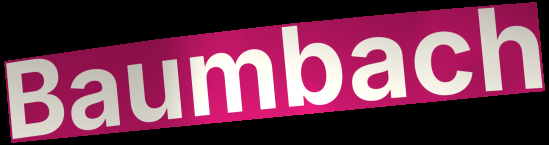
Baumbach